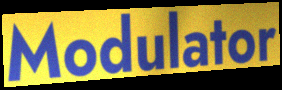
Modulator